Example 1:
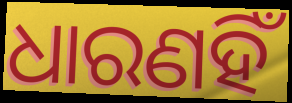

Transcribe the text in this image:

ଧାରଣହିଁ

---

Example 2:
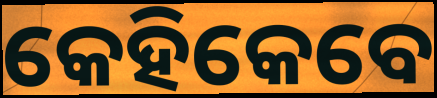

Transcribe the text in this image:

କେହିକେବେ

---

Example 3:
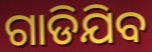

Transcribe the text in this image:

ଗାଡିଯିବ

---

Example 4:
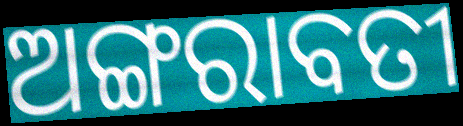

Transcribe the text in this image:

ଅଙ୍ଗରାବତୀ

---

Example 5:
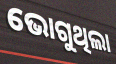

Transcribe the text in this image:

ଭୋଗୁଥିଲା